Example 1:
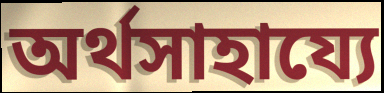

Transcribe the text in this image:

অর্থসাহায্যে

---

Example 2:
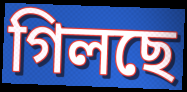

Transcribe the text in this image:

গিলছে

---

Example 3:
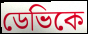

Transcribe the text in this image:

ডেভিকে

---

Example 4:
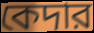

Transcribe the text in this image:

কেদার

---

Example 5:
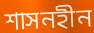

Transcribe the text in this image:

শাসনহীন